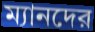
ম্যানদের